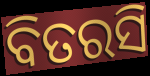
ବିତରସି